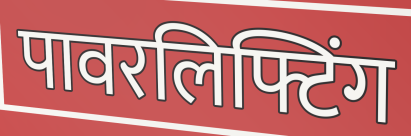
पावरलिफ्टिंग